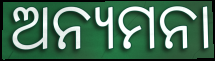
ଅନ୍ୟମନା